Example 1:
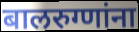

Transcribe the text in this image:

बालरुग्णांना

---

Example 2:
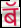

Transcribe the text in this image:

बॅ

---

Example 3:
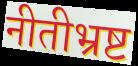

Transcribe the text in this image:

नीतीभ्रष्ट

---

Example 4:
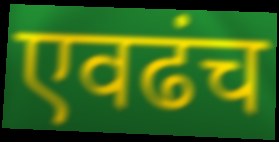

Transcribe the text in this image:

एवढंच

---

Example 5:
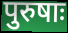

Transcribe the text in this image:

पुरुषाः